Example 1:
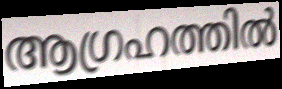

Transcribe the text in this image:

ആഗ്രഹത്തിൽ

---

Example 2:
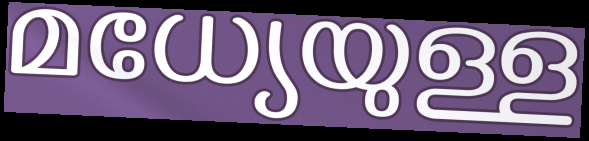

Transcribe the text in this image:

മധ്യേയുള്ള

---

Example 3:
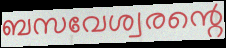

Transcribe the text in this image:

ബസവേശ്വരന്റെ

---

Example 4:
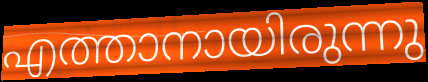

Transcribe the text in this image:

എത്താനായിരുന്നു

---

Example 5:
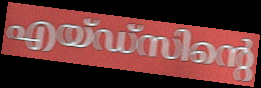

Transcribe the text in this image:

എയ്ഡ്സിന്റെ